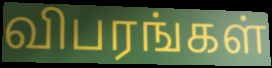
விபரங்கள்